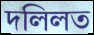
দলিলত